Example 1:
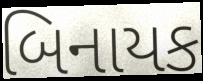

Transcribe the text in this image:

બિનાયક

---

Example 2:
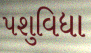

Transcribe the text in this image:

પશુવિદ્યા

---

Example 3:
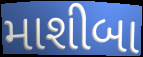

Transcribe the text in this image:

માશીબા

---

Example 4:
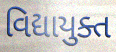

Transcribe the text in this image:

વિદ્યાયુક્ત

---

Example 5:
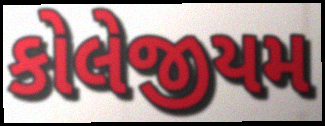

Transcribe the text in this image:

કોલેજીયમ